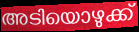
അടിയൊഴുക്ക്